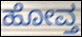
ಹೋವ್ತ